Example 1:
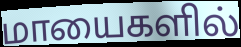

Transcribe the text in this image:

மாயைகளில்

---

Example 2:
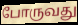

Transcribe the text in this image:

போருவது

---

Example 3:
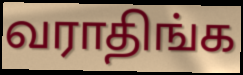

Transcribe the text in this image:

வராதிங்க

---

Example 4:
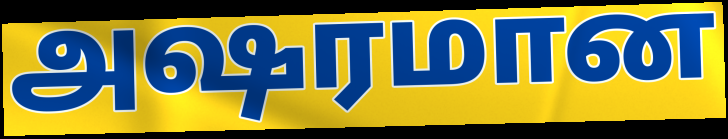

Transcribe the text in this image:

அஷரமான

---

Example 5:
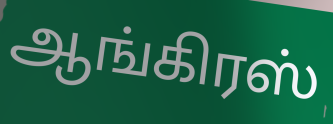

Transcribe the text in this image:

ஆங்கிரஸ்